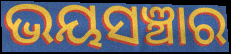
ଭୟସଞ୍ଚାର